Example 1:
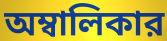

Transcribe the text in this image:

অম্বালিকার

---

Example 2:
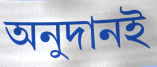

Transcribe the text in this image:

অনুদানই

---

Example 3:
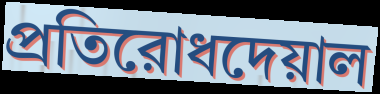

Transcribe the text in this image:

প্রতিরোধদেয়াল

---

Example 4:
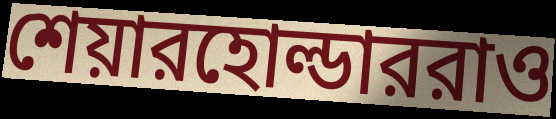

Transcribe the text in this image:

শেয়ারহোল্ডাররাও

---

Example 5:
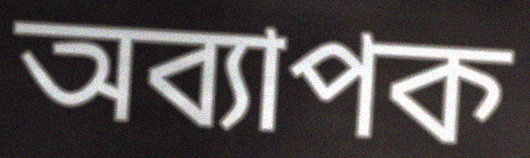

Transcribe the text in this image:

অব্যাপক